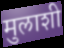
मुलाशी